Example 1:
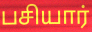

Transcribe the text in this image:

பசியார்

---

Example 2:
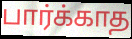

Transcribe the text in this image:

பார்க்காத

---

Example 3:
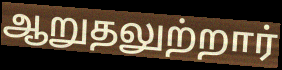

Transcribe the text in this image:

ஆறுதலுற்றார்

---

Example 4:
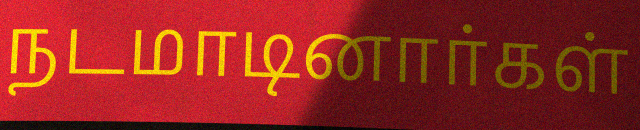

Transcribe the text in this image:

நடமாடினார்கள்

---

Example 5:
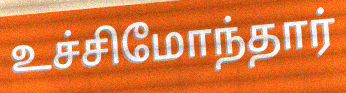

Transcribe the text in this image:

உச்சிமோந்தார்